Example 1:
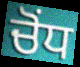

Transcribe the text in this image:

ਚੋਂਧ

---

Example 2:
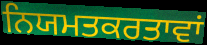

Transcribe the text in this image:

ਨਿਯਮਤਕਰਤਾਵਾਂ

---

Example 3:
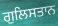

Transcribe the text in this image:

ਗੁਲਿਸਤਾਨ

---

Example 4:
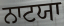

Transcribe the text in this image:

ਨਾਟਯਾ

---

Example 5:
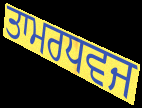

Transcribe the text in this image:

ਤਾਮਰਧਵਜ